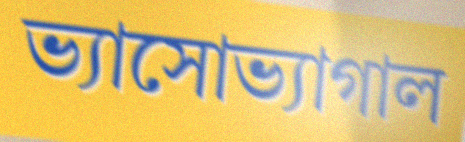
ভ্যাসোভ্যাগাল